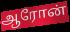
ஆரோன்